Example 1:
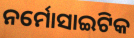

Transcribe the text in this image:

ନର୍ମୋସାଇଟିକ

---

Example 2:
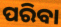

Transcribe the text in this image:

ପରିବା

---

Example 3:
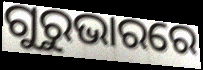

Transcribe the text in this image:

ଗୁରୁଭାରରେ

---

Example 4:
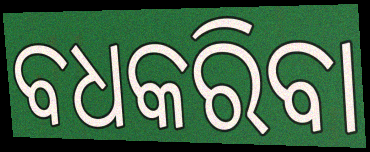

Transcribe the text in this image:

ବଧକରିବା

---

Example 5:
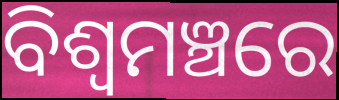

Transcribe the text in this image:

ବିଶ୍ୱମଞ୍ଚରେ